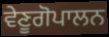
ਵੇਣੂਗੋਪਾਲਨ